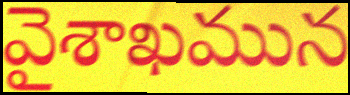
వైశాఖమున